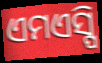
ଏମଏସ୍ପି